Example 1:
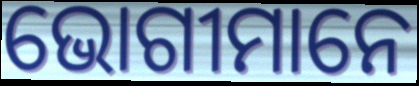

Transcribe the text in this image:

ଭୋଗୀମାନେ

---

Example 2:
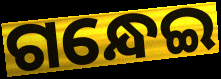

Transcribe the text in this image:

ଗନ୍ଧେଇ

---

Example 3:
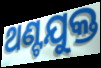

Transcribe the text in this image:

ଥଣ୍ଟଯୁକ୍ତ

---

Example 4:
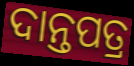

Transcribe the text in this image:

ଦାନ୍ତପତ୍ର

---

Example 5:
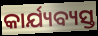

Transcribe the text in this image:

କାର୍ଯ୍ୟବ୍ୟସ୍ତ